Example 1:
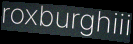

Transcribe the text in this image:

roxburghiii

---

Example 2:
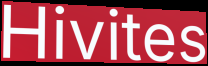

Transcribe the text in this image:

Hivites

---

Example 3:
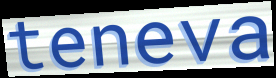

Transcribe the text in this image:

teneva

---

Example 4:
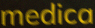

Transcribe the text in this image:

medica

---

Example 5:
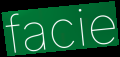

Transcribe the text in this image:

facie